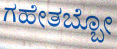
ಗಹೇತಬ್ಬೋ